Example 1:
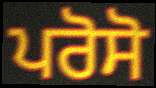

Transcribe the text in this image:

ਪਰੋਸੋ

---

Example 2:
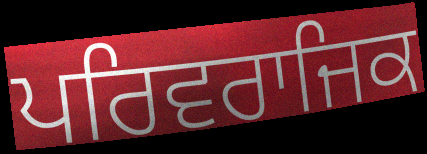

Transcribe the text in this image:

ਪਰਿਵਰਾਜਿਕ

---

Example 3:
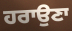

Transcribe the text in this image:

ਹਰਾਉਣਾ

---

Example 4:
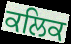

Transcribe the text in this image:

ਕਲਿਕ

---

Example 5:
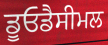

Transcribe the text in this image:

ਡੂਓਡੈਸੀਮਲ